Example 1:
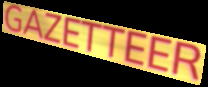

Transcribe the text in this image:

GAZETTEER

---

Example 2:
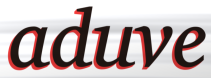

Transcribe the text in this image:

aduve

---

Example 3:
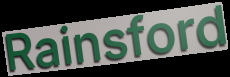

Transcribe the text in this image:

Rainsford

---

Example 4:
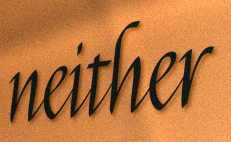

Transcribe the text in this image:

neither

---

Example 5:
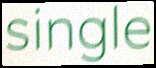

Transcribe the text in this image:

single